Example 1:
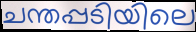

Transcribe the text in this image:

ചന്തപ്പടിയിലെ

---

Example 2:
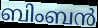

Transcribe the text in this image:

ബിംബൻ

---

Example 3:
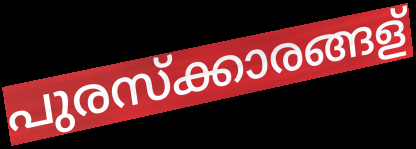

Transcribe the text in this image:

പുരസ്ക്കാരങ്ങള്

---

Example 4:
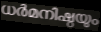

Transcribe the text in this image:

ധർമനിഷ്ഠയും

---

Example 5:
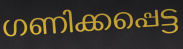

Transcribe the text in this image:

ഗണിക്കപ്പെട്ട